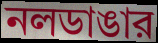
নলডাঙার